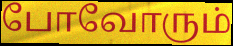
போவோரும்